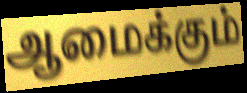
ஆமைக்கும்